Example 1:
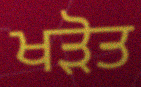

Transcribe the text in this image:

ਖੜੋਤ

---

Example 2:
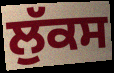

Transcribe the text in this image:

ਲੁੱਕਸ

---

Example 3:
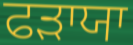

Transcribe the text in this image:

ਫੜਾਯਾ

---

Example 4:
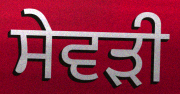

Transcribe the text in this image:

ਸੇਵੜੀ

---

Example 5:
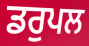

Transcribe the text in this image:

ਡਰੁਪਲ